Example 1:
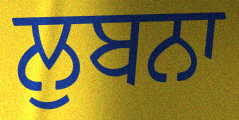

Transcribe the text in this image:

ਲੁਬਨਾ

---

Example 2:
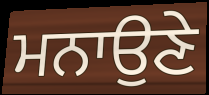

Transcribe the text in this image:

ਮਨਾਉਣੇ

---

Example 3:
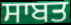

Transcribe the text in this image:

ਸਾਬਤ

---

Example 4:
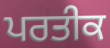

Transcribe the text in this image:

ਪਰਤੀਕ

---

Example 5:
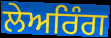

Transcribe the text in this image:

ਲੇਅਰਿੰਗ